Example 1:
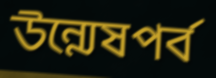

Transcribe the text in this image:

উন্মেষপর্ব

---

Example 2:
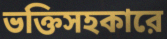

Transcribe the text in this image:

ভক্তিসহকারে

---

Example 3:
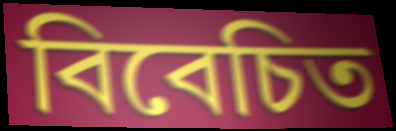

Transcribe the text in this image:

বিবেচিত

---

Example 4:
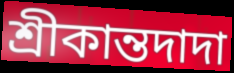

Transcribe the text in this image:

শ্রীকান্তদাদা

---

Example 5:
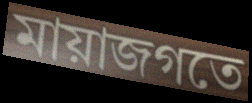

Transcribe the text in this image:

মায়াজগতে